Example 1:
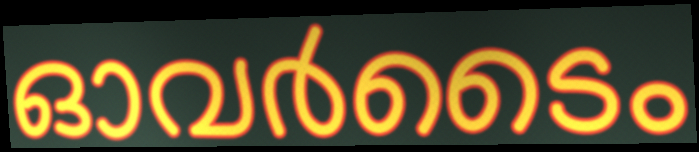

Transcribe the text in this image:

ഓവർടൈം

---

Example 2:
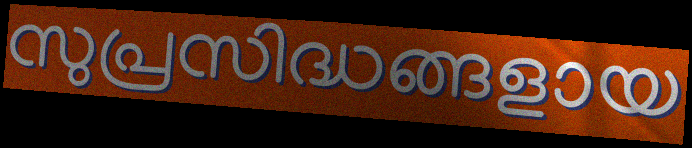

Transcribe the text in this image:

സുപ്രസിദ്ധങ്ങളായ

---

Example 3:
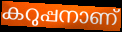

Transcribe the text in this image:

കറുപ്പനാണ്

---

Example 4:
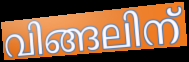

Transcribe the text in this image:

വിങ്ങലിന്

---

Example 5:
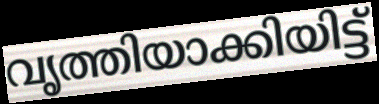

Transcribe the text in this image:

വൃത്തിയാക്കിയിട്ട്